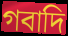
গবাদি